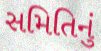
સમિતિનું